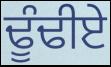
ਢੂੰਢੀਏ